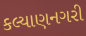
કલ્યાણનગરી